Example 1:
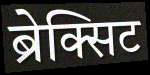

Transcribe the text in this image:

ब्रेक्सिट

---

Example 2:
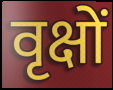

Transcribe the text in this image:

वृक्षों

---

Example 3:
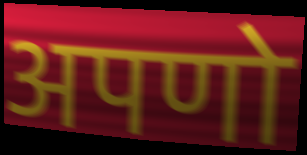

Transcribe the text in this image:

अपणो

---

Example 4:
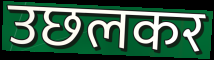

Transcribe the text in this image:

उछलकर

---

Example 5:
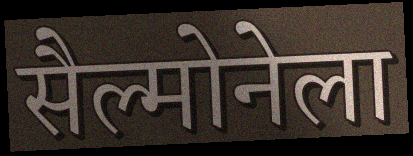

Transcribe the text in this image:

सैल्मोनेला